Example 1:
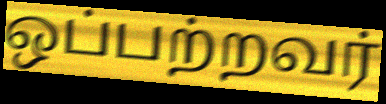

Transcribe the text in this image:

ஒப்பற்றவர்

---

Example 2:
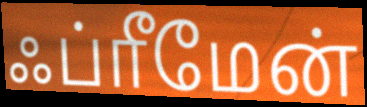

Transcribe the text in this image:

ஃப்ரீமேன்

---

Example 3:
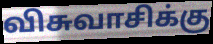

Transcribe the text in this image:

விசுவாசிக்கு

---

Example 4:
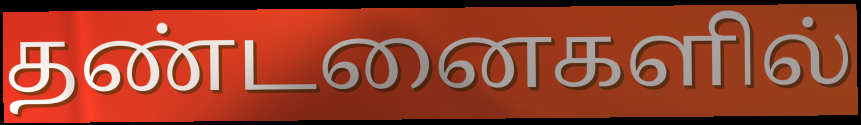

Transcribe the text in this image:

தண்டனைகளில்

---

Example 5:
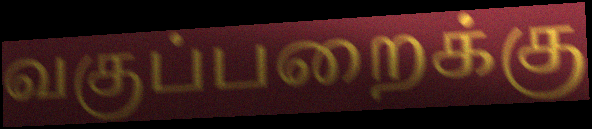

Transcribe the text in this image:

வகுப்பறைக்கு